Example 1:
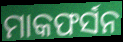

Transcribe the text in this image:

ମାକଫର୍ସନ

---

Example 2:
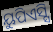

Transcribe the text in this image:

ୟୁପିଏସ୍ସି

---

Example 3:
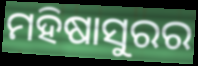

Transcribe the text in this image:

ମହିଷାସୁରର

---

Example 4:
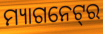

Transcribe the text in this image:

ମ୍ୟାଗନେଟ୍‌ର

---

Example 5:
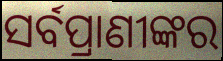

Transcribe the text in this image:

ସର୍ବପ୍ରାଣୀଙ୍କର